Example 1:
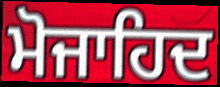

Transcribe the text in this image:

ਮੋਜਾਹਿਦ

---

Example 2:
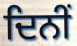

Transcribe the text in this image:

ਦਿਨੀਂ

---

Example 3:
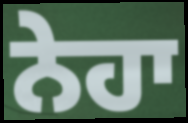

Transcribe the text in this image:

ਨੇਹਾ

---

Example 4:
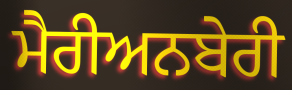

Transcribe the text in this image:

ਮੈਰੀਅਨਬੇਰੀ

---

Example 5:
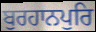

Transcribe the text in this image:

ਬੁਰਹਾਨਪੁਰਿ